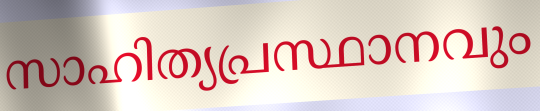
സാഹിത്യപ്രസ്ഥാനവും